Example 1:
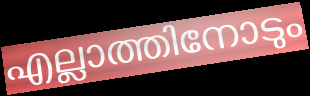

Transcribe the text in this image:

എല്ലാത്തിനോടും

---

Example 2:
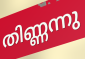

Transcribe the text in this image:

തിണ്ണന്നു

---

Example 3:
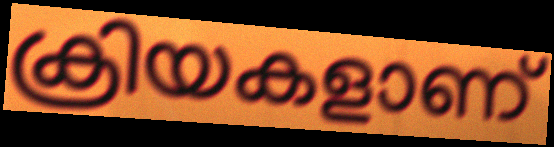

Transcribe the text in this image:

ക്രിയകളാണ്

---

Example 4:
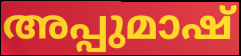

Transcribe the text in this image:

അപ്പുമാഷ്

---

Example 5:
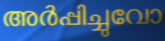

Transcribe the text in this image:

അർപ്പിച്ചുവോ